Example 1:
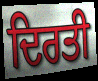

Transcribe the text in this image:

ਦਿਰਤੀ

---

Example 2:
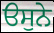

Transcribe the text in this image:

ੳਸੁਨੇ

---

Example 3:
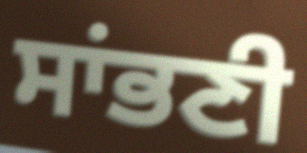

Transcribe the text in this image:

ਸਾਂਭਣੀ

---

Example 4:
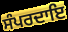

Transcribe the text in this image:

ਸੰਪਰਦਾਇ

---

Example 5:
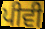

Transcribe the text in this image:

ਪੀਵੀ